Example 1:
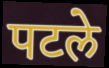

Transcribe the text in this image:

पटले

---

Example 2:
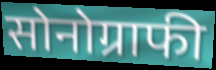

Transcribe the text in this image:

सोनोग्राफी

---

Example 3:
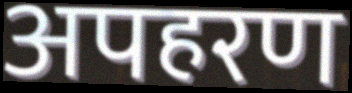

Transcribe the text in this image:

अपहरण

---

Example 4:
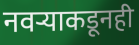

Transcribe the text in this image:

नवऱ्याकडूनही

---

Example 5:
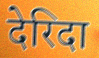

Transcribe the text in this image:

देरिदा